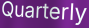
Quarterly